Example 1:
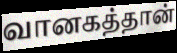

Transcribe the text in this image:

வானகத்தான்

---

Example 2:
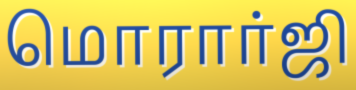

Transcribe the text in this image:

மொரார்ஜி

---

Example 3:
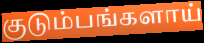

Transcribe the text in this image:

குடும்பங்களாய்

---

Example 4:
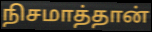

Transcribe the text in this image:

நிசமாத்தான்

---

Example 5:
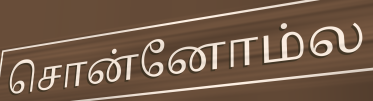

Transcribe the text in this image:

சொன்னோம்ல